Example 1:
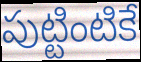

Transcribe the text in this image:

పుట్టింటికే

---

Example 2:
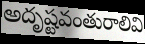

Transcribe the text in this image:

అదృష్టవంతురాలివి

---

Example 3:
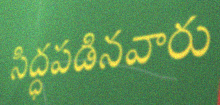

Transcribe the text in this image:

సిద్ధపడినవారు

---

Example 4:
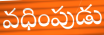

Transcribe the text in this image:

వధింపుడు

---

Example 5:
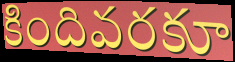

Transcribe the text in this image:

కిందివరకూ